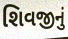
શિવજીનું